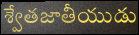
శ్వేతజాతీయుడు